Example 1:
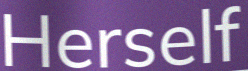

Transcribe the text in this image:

Herself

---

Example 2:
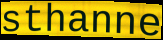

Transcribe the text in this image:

sthanne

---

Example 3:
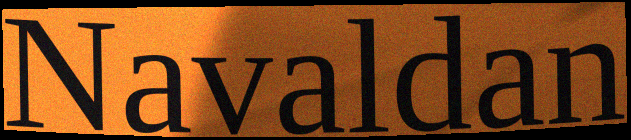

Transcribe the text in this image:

Navaldan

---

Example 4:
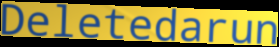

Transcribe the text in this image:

Deletedarun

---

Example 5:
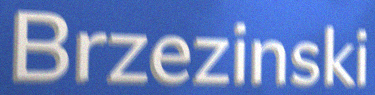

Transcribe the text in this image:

Brzezinski